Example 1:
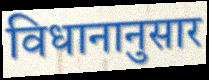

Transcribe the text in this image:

विधानानुसार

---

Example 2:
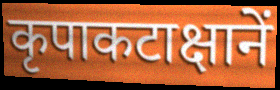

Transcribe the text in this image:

कृपाकटाक्षानें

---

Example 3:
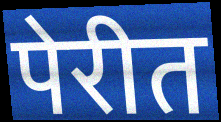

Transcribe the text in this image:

पेरीत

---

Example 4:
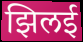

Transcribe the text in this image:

झिलई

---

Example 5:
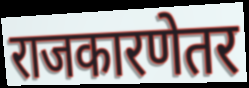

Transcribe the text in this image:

राजकारणेतर